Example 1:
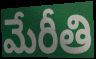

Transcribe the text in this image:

మేరీతి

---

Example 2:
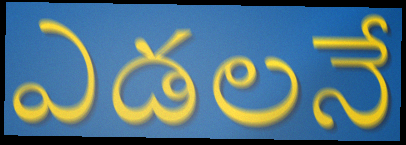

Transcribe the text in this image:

ఎడలనే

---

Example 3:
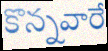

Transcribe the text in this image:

కొన్నవారే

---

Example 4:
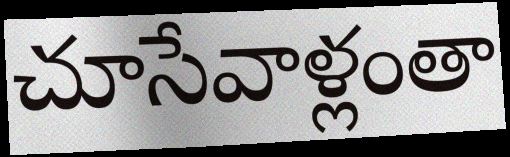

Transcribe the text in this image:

చూసేవాళ్లంతా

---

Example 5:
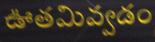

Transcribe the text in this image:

ఊతమివ్వడం